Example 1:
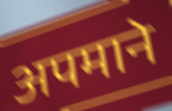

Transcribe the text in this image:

अपमाने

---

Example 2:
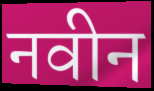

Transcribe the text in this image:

नवीन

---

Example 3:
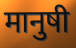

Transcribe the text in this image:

मानुषी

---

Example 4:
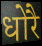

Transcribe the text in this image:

धोरै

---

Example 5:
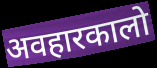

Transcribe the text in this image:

अवहारकालो